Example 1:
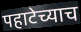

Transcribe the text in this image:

पहाटेच्याच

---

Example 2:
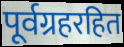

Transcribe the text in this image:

पूर्वग्रहरहित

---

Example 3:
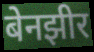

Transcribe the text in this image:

बेनझीर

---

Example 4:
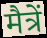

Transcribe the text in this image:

मैत्रें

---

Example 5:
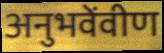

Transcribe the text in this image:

अनुभवेंवीण